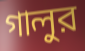
গালুর